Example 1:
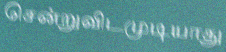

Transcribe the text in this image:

சென்றுவிடமுடியாது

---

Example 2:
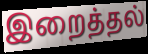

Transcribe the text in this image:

இறைத்தல்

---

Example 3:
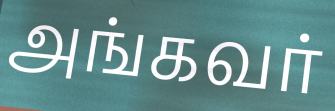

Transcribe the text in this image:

அங்கவர்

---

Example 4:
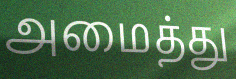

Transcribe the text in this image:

அமைத்து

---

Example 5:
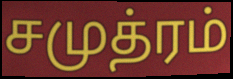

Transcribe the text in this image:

சமுத்ரம்